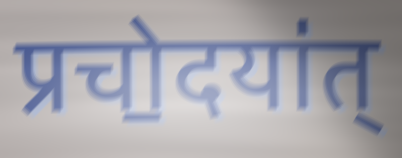
प्रचो॒दया॑त्